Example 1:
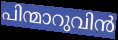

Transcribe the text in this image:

പിന്മാറുവിൻ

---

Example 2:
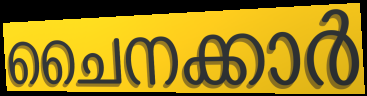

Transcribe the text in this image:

ചൈനക്കാർ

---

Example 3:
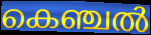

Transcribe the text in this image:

കെഞ്ചൽ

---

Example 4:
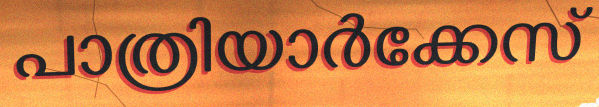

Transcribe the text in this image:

പാത്രിയാർക്കേസ്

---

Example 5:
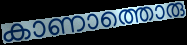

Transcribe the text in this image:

കാണാത്തൊരു